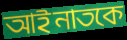
আইনাতকে